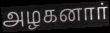
அழகனார்